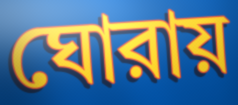
ঘোরায়